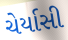
ચેર્યાસી